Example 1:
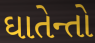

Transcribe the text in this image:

ઘાતેન્તો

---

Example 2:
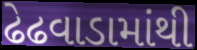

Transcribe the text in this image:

ઢેઢવાડામાંથી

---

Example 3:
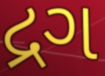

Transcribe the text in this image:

દ્રગ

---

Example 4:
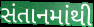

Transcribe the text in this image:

સંતાનમાંથી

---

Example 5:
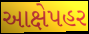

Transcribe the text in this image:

આક્ષેપહર